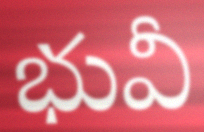
భువీ